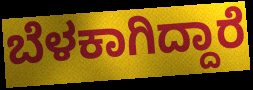
ಬೆಳಕಾಗಿದ್ದಾರೆ